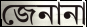
জেনানা